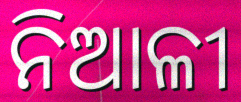
ନିଆଳୀ